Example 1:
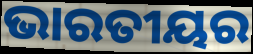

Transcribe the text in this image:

ଭାରତୀୟର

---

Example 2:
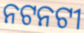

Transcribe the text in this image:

ନଟନଟୀ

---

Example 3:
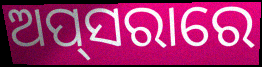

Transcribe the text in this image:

ଅପ୍‌ସରାରେ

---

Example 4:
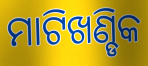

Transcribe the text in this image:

ମାଟିଖଣ୍ଡିକ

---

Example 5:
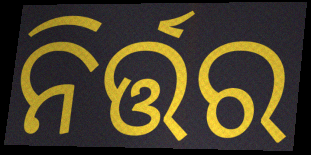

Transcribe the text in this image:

ନିର୍ତ୍ତର